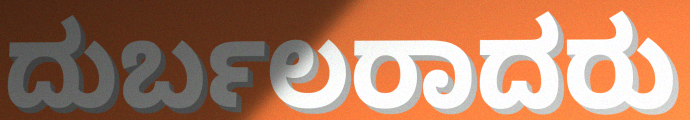
ದುರ್ಬಲರಾದರು